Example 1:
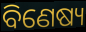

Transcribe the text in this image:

ବିଣେଷ୍ୟ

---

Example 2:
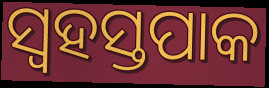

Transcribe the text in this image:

ସ୍ୱହସ୍ତପାକ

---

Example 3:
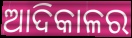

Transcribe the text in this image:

ଆଦିକାଳର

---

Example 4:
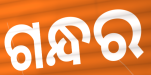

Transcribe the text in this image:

ଗନ୍ଧର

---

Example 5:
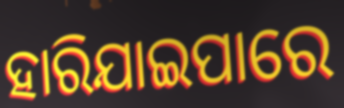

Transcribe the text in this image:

ହାରିଯାଇପାରେ